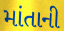
માંતાની